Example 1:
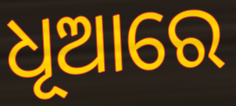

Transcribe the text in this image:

ଧୂଆରେ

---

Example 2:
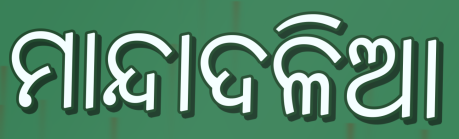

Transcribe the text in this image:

ମାନ୍ଦାଦଳିଆ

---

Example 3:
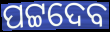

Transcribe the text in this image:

ପଟ୍ଟଦେବ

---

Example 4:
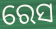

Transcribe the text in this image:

ରେସ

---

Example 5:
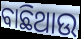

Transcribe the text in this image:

ବାଛିଥାଉ